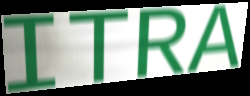
ITRA